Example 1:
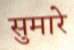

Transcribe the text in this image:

सुमारे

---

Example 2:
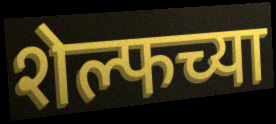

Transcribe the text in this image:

शेल्फच्या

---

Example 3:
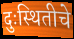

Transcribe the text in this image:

दुःस्थितीचे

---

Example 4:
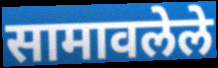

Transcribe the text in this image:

सामावलेले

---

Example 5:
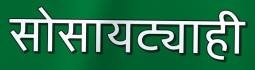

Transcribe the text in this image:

सोसायट्याही